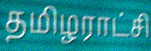
தமிழராட்சி